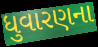
ધુવારણના